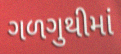
ગળગુથીમાં